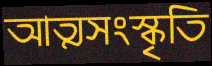
আত্মসংস্কৃতি